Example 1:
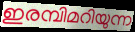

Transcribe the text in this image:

ഇരമ്പിമറിയുന്ന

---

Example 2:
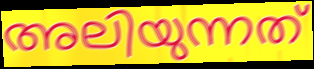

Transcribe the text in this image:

അലിയുന്നത്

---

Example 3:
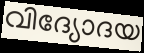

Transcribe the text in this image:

വിദ്യോദയ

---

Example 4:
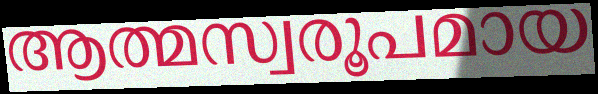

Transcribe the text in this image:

ആത്മസ്വരൂപമായ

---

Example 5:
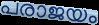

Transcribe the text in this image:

പരാജയം